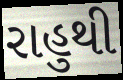
રાહુથી